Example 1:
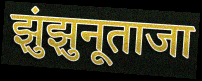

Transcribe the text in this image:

झुंझुनूताजा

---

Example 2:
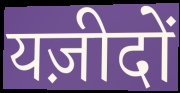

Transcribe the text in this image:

यज़ीदों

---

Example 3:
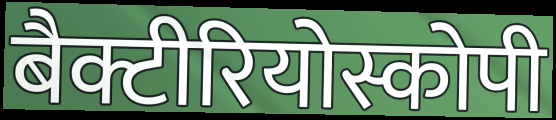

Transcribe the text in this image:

बैक्टीरियोस्कोपी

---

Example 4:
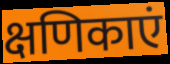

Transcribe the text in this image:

क्षणिकाएं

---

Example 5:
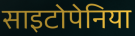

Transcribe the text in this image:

साइटोपेनिया